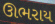
ઊભરાય